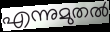
എന്നുമുതൽ